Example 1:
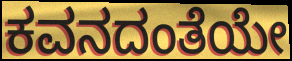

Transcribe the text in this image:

ಕವನದಂತೆಯೇ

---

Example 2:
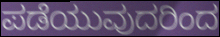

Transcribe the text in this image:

ಪಡೆಯುವುದರಿಂದ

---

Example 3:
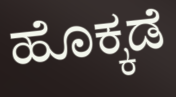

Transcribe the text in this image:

ಹೊಕ್ಕಡೆ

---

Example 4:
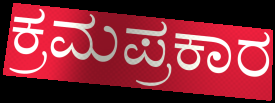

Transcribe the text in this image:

ಕ್ರಮಪ್ರಕಾರ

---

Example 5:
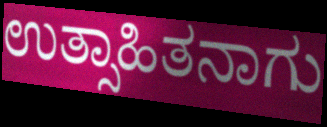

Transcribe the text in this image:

ಉತ್ಸಾಹಿತನಾಗು